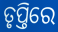
ତୃପ୍ତିରେ